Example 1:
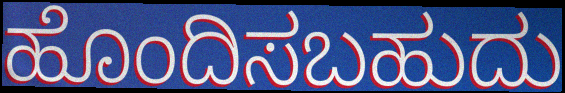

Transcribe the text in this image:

ಹೊಂದಿಸಬಹುದು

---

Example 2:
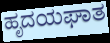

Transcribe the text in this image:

ಹೃದಯಘಾತ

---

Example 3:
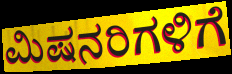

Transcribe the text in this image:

ಮಿಷನರಿಗಳಿಗೆ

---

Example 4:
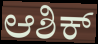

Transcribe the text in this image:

ಆಶಿಕ್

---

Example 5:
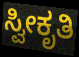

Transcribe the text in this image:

ಸ್ವೀಕೃತಿ